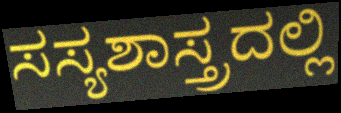
ಸಸ್ಯಶಾಸ್ತ್ರದಲ್ಲಿ